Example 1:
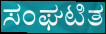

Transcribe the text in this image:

ಸಂಘಟಿತ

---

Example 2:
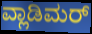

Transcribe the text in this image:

ವ್ಲಾಡಿಮರ್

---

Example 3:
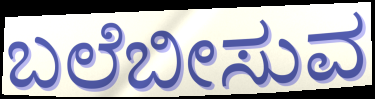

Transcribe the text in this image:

ಬಲೆಬೀಸುವ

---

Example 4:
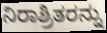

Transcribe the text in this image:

ನಿರಾಶ್ರಿತರನ್ನು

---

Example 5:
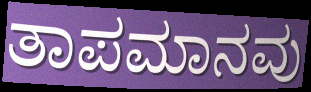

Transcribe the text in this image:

ತಾಪಮಾನವು